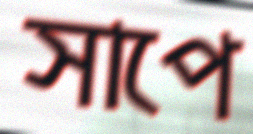
সাপে